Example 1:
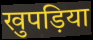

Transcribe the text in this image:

खुपड़िया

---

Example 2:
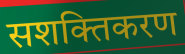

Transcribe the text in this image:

सशक्‍तिकरण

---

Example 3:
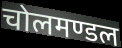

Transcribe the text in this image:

चोलमण्डल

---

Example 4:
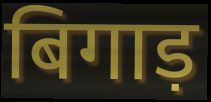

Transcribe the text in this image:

बिगाड़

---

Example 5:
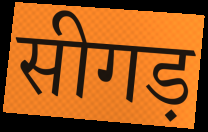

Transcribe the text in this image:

सीगड़